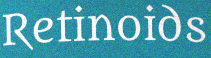
Retinoids